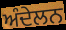
ਅੰਦੇਲਨ